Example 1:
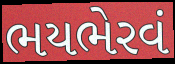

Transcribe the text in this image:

ભયભેરવં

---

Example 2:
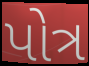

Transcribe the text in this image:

પોત્ર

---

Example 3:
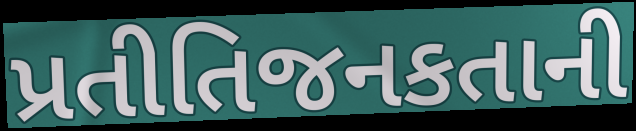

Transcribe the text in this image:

પ્રતીતિજનકતાની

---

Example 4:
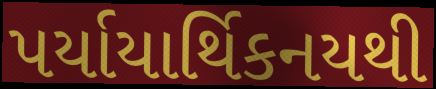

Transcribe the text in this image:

પર્યાયાર્થિકનયથી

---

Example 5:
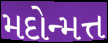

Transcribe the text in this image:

મદોન્મત્ત